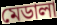
মেডালা